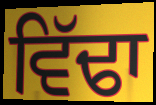
ਵਿੱਢਾ